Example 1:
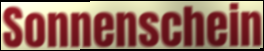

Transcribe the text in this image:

Sonnenschein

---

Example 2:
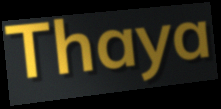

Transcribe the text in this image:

Thaya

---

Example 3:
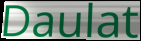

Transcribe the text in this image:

Daulat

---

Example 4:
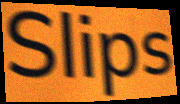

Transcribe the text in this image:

Slips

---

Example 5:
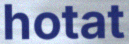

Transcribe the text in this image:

hotat